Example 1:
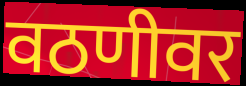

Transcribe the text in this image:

वठणीवर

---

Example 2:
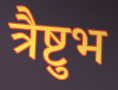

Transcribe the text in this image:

त्रैष्टुभ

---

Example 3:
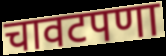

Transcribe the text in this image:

चावटपणा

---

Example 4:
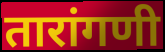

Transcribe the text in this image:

तारांगणी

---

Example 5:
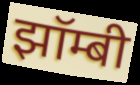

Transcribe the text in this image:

झॉम्बी